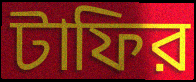
টাফির